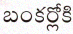
బంకర్లోకి